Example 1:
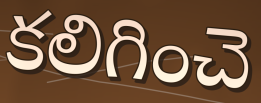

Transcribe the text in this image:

కలిగించె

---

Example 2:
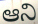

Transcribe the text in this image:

ఆని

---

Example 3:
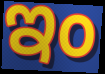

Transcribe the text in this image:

ఇం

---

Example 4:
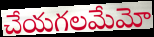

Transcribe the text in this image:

చేయగలమేమో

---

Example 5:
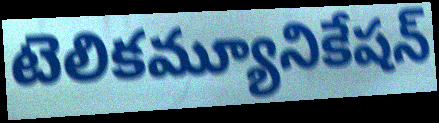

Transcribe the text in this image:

టెలికమ్యూనికేషన్